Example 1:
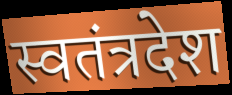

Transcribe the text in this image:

स्वतंत्रदेश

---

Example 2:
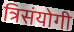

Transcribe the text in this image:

त्रिसंयोगी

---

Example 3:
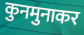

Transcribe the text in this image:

कुनमुनाकर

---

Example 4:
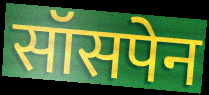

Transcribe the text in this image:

सॉसपेन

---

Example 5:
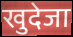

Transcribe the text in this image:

खुदेजा